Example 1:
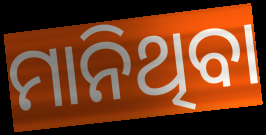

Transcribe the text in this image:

ମାନିଥିବା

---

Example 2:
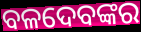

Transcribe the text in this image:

ବଳଦେବଙ୍କର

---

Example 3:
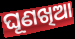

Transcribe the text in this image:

ଘୂଣଖିଆ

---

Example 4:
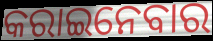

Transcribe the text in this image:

କରାଇନେବାର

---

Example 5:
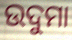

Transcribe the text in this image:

ଉଦୁମା